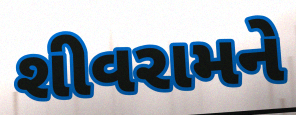
શીવરામને